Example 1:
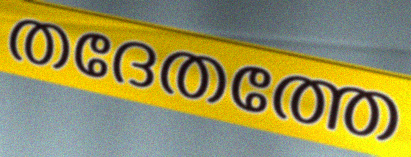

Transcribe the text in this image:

തദേതത്തേ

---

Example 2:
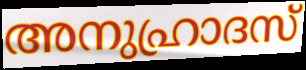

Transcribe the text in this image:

അനുഹ്രാദസ്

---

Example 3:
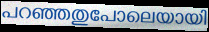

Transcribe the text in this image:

പറഞ്ഞതുപോലെയായി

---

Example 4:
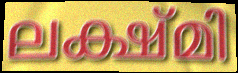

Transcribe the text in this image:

ലക്ഷ്‌മി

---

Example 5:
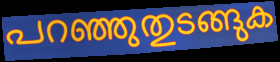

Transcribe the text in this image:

പറഞ്ഞുതുടങ്ങുക